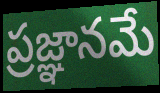
ప్రజ్ఞానమే